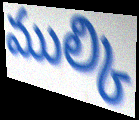
ముల్కి